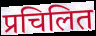
प्रचिलित